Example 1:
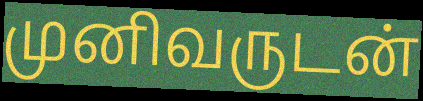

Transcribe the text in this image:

முனிவருடன்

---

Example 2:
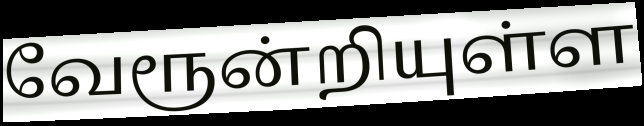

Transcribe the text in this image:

வேரூன்றியுள்ள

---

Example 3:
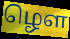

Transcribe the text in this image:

ழௌ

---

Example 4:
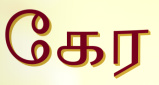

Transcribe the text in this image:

கேர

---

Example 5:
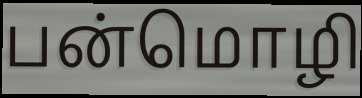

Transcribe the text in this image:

பன்மொழி